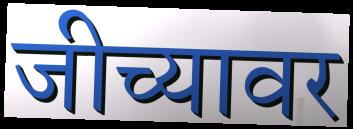
जीच्यावर